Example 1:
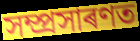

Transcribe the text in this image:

সম্প্ৰসাৰণত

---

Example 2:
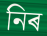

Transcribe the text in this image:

নিৰ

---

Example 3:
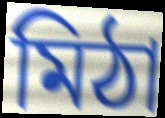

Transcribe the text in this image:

মিঠা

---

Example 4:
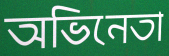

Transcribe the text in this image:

অভিনেতা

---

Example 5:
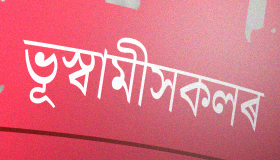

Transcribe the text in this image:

ভূস্বামীসকলৰ